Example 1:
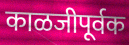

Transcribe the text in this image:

काळजीपूर्वक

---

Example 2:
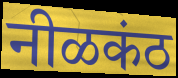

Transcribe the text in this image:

नीळकंठ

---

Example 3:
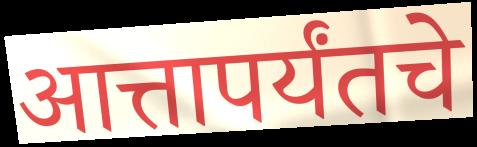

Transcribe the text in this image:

आत्तापर्यंतचे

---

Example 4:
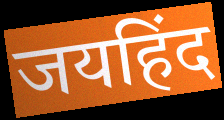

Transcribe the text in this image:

जयहिंद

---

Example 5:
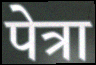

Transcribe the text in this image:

पेत्रा